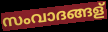
സംവാദങ്ങള്